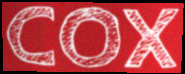
COX